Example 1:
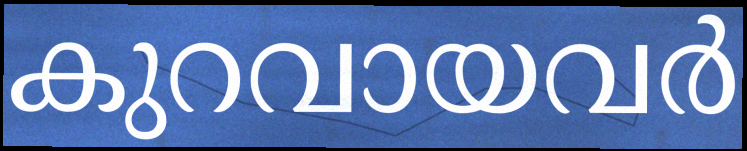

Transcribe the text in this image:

കുറവായവർ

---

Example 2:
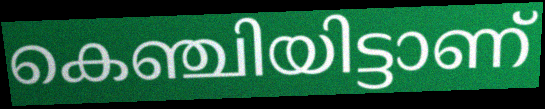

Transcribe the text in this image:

കെഞ്ചിയിട്ടാണ്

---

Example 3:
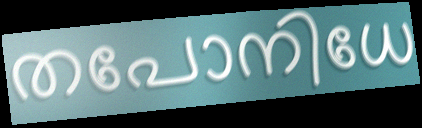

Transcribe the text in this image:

തപോനിധേ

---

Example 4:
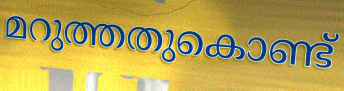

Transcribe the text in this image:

മറുത്തതുകൊണ്ട്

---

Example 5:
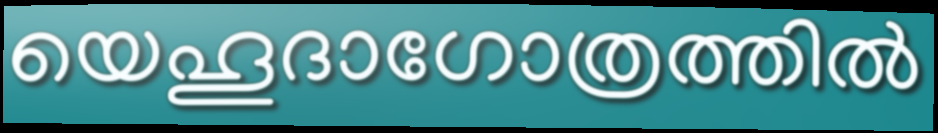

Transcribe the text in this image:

യെഹൂദാഗോത്രത്തിൽ